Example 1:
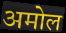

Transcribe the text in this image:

अमोल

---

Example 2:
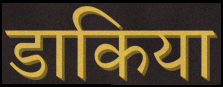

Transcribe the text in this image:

डाकिया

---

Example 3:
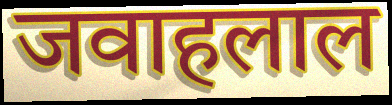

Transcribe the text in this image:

जवाहलाल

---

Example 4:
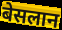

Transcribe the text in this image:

बेसलान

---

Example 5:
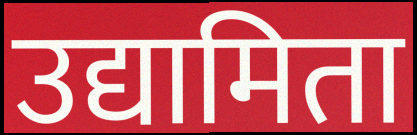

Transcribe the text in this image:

उद्यामिता